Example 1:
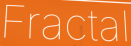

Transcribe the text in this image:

Fractal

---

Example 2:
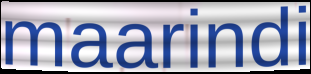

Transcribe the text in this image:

maarindi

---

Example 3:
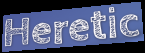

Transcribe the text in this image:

Heretic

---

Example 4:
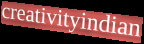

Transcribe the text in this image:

creativityindian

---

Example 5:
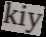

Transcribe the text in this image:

kiy